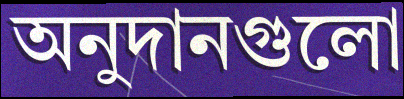
অনুদানগুলো